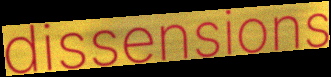
dissensions